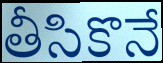
తీసికొనే